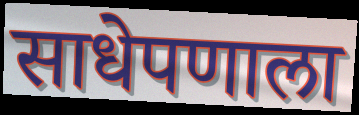
साधेपणाला